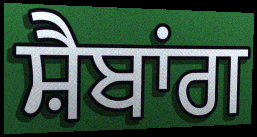
ਸ਼ੈਬਾਂਗ